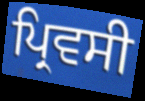
ਪ੍ਰਿਵਸੀ